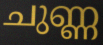
ചുണ്ണ